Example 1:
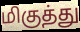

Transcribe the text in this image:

மிகுத்து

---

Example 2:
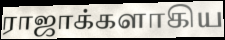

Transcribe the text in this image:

ராஜாக்களாகிய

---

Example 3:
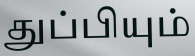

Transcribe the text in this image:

துப்பியும்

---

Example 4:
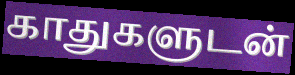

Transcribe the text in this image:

காதுகளுடன்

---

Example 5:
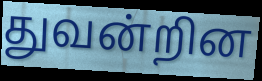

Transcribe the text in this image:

துவன்றின